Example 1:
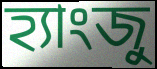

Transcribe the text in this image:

হ্যাংজু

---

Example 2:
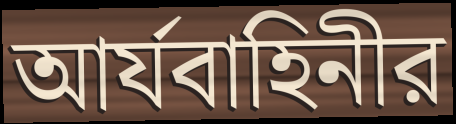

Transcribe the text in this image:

আর্যবাহিনীর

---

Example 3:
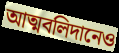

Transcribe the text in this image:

আত্মবলিদানেও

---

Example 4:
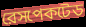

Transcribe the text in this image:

রেসপেকটেড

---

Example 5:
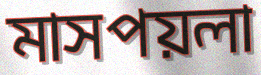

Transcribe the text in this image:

মাসপয়লা